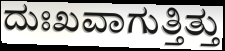
ದುಃಖವಾಗುತ್ತಿತ್ತು